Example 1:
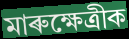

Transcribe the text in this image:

মাৰুক্ষেত্ৰীক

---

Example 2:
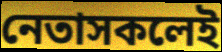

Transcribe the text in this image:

নেতাসকলেই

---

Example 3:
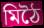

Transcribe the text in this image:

মিঠৈ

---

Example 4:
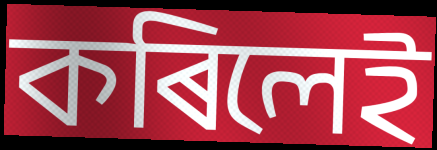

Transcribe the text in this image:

কৰিলেই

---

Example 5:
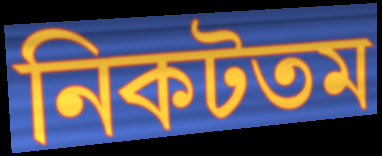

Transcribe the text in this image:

নিকটতম